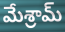
మేశ్రామ్